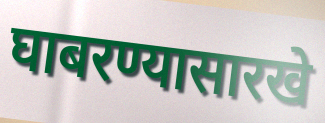
घाबरण्यासारखे